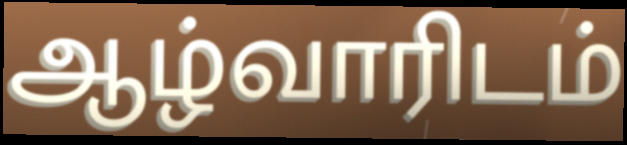
ஆழ்வாரிடம்